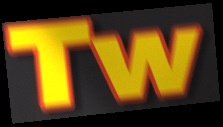
Tw